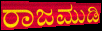
ರಾಜಮುಡಿ